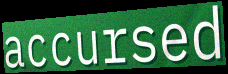
accursed